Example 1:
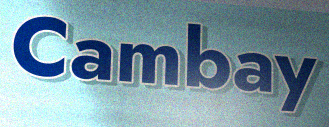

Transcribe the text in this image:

Cambay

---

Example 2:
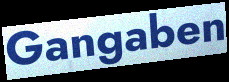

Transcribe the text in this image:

Gangaben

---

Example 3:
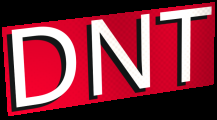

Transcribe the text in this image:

DNT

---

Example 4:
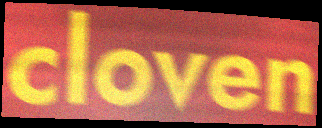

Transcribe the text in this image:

cloven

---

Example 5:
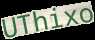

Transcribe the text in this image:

UThixo